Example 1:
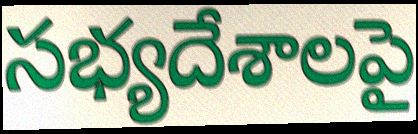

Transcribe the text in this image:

సభ్యదేశాలపై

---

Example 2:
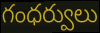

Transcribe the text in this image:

గంధర్వులు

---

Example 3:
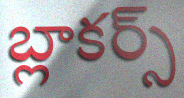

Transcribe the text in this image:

బ్లాకర్స్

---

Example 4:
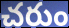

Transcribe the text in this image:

చరుం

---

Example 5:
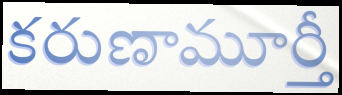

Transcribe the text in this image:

కరుణామూర్తీ